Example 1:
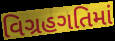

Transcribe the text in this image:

વિગ્રહગતિમાં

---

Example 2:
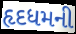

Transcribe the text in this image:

હૃદધમની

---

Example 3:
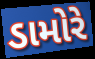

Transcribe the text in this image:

ડામોરે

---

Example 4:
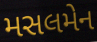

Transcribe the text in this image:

મસલમેન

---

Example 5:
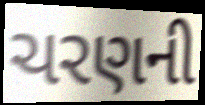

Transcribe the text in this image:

ચરણની